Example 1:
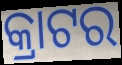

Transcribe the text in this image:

କ୍ରାଟର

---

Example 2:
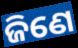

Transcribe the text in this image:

ଜିଣେ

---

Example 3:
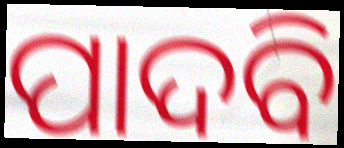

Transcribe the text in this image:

ପାଦବି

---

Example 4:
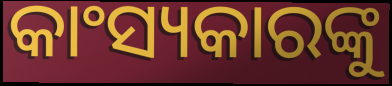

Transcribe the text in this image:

କାଂସ୍ୟକାରଙ୍କୁ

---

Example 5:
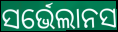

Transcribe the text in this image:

ସର୍ଭେଲାନସ